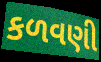
કળવણી